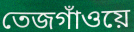
তেজগাঁওয়ে